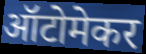
ऑटोमेकर